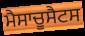
ਮੈਸਾਚੂਸੈਟਸ